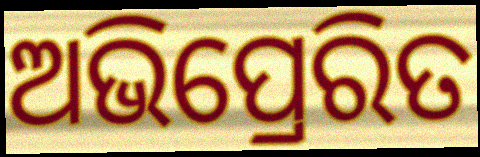
ଅଭିପ୍ରେରିତ